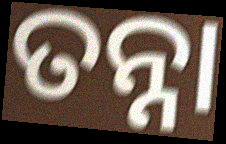
ତନ୍ନା